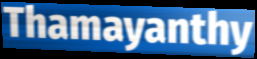
Thamayanthy